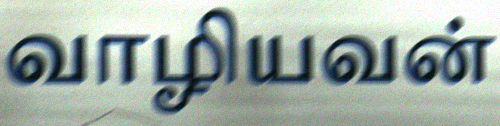
வாழியவன்